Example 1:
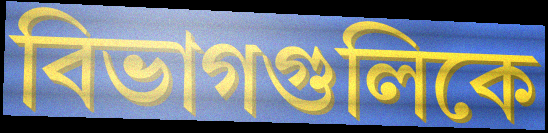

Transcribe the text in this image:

বিভাগগুলিকে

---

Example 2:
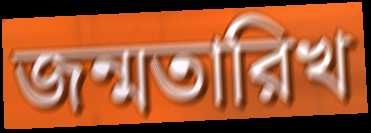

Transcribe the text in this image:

জন্মতারিখ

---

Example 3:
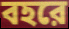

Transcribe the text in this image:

বহরে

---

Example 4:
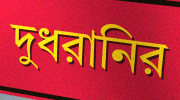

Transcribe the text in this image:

দুধরানির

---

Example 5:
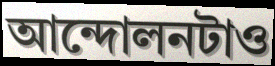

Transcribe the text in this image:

আন্দোলনটাও